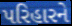
પરિહારને